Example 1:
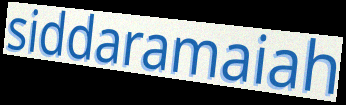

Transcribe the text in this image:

siddaramaiah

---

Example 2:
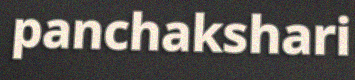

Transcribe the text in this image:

panchakshari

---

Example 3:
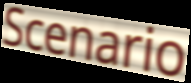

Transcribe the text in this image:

Scenario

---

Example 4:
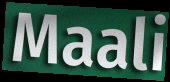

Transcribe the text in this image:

Maali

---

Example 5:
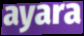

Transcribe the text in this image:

ayara